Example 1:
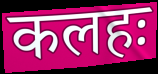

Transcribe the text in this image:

कलहः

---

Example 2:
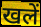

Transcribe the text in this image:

खलें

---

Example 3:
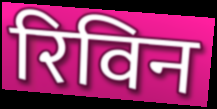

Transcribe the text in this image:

रिविन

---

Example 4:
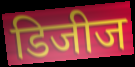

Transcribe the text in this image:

डिजीज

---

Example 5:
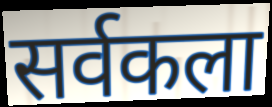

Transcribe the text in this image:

सर्वकला